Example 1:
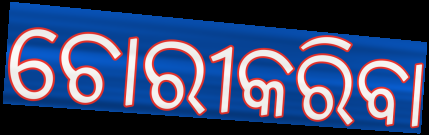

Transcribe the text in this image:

ଚୋରୀକରିବା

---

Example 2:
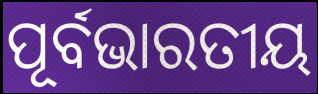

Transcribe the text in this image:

ପୂର୍ବଭାରତୀୟ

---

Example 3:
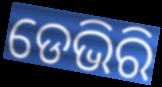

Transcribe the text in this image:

ଡେଭିରି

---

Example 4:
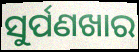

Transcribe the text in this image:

ସୁର୍ପଣଖାର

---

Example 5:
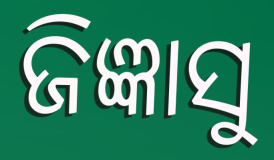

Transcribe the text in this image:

ଜିଜ୍ଞାସୁ